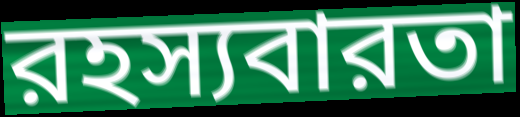
রহস্যবারতা